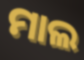
ମାଲ